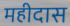
महीदास